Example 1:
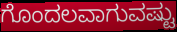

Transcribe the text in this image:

ಗೊಂದಲವಾಗುವಷ್ಟು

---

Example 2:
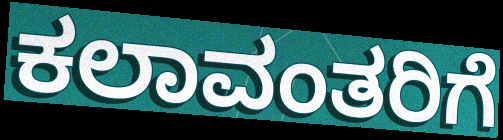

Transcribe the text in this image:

ಕಲಾವಂತರಿಗೆ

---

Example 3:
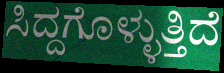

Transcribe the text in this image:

ಸಿದ್ದಗೊಳ್ಳುತ್ತಿದೆ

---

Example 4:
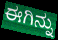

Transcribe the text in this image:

ಈಗಿನ್ನು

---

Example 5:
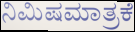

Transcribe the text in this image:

ನಿಮಿಷಮಾತ್ರಕೆ